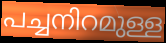
പച്ചനിറമുള്ള